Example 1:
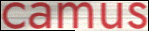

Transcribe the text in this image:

camus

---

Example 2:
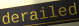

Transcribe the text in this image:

derailed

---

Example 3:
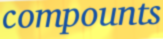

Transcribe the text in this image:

compounts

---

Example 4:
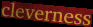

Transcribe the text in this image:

cleverness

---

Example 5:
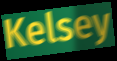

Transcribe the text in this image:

Kelsey